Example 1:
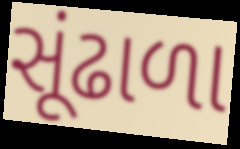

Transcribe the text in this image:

સૂંઢાળા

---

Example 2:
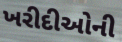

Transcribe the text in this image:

ખરીદીઓની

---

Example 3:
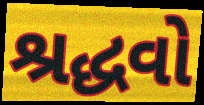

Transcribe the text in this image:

શ્રદ્ધવો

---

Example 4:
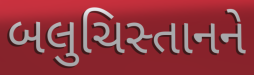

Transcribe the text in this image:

બલુચિસ્તાનને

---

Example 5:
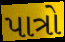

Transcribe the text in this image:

પાત્રો